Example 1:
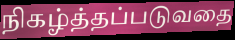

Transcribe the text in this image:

நிகழ்த்தப்படுவதை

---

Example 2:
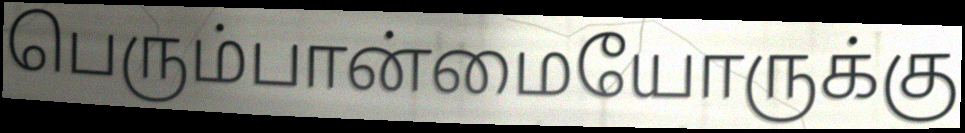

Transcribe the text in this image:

பெரும்பான்மையோருக்கு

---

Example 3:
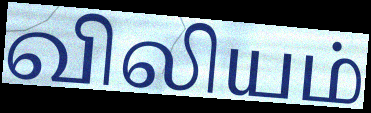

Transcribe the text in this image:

விலியம்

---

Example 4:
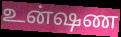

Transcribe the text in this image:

உன்ஷண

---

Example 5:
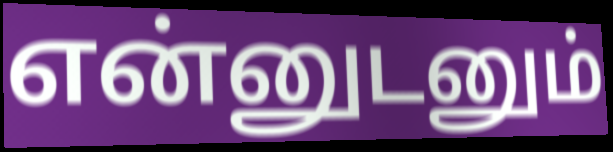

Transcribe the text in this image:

என்னுடனும்